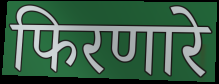
फिरणारे